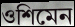
ওশিমেন